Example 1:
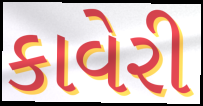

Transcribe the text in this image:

કાવેરી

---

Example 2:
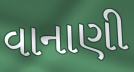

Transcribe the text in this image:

વાનાણી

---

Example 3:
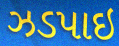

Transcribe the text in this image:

ઝડપાઇ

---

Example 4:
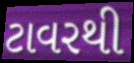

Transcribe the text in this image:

ટાવરથી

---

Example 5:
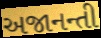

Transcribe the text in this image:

અજાનન્તી